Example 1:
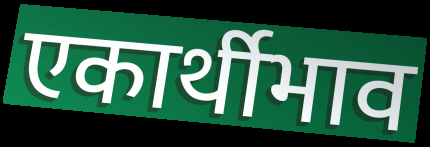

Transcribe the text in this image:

एकार्थीभाव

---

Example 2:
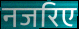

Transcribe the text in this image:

नजरिए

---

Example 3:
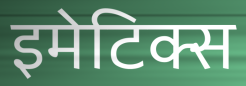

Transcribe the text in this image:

इमेटिक्स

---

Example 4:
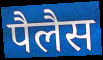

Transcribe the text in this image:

पैलैस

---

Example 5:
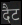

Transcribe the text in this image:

दैट